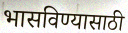
भासविण्यासाठी